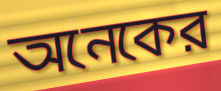
অনেকের